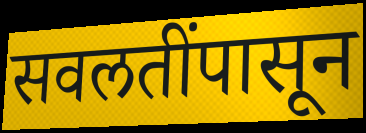
सवलतींपासून